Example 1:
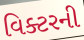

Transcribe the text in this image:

વિક્ટરની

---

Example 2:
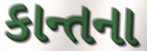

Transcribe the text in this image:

કાન્તના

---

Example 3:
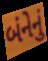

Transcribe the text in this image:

બંનેનું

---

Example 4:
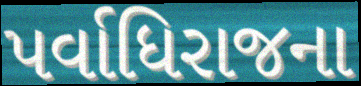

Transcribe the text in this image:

પર્વાધિરાજના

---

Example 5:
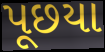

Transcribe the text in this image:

પૂછયા